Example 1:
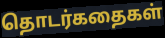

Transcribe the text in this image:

தொடர்கதைகள்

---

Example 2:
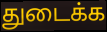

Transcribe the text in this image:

துடைக்க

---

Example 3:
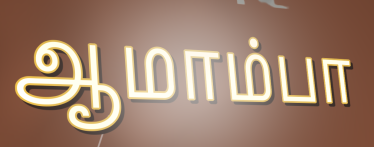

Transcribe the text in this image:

ஆமாம்பா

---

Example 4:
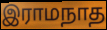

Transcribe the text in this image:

இராமநாத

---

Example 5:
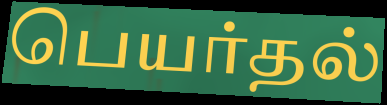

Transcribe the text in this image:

பெயர்தல்